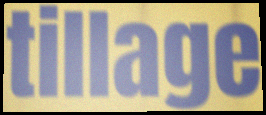
tillage